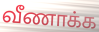
வீணாக்க